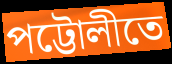
পট্টোলীতে